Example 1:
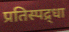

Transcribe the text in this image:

प्रतिस्पद्र्धा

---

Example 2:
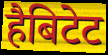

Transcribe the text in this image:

हैबिटेट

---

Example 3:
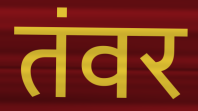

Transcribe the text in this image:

तंवर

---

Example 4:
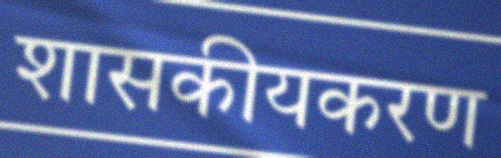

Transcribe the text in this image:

शासकीयकरण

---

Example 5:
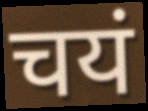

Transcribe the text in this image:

चयं